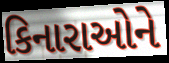
કિનારાઓને